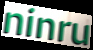
ninru